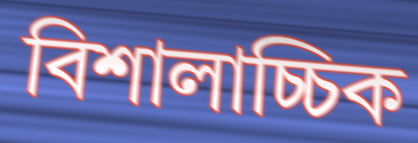
বিশালাচ্চিক